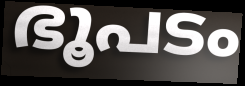
ഭൂപടം